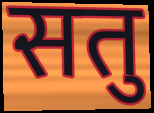
सतु